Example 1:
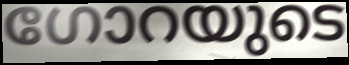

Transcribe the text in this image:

ഗോറയുടെ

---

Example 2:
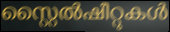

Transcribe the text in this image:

സ്റ്റൈൽഷീറ്റുകൾ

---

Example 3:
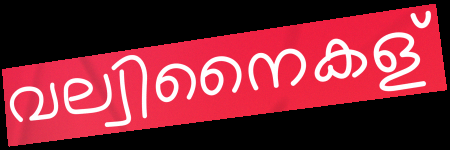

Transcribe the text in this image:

വല്വിനൈകള്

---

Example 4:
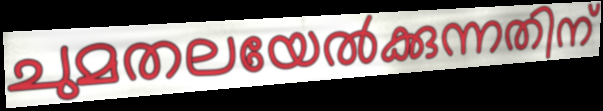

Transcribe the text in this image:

ചുമതലയേൽക്കുന്നതിന്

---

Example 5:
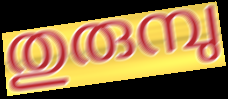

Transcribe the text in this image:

തുരുമ്പു